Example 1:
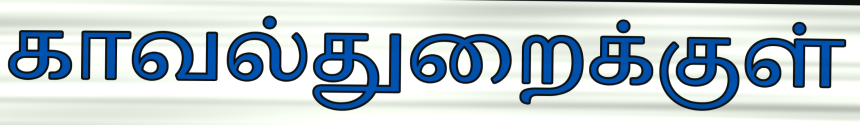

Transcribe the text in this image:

காவல்துறைக்குள்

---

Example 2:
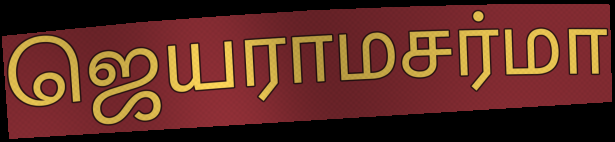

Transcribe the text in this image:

ஜெயராமசர்மா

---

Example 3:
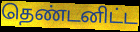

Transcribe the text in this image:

தெண்டனிட்ட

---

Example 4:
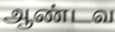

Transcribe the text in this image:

ஆண்டவ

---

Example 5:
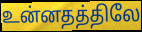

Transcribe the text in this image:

உன்னதத்திலே